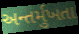
અન્તર્મુખતા